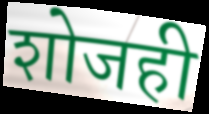
शोजही